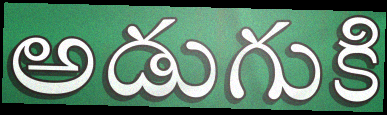
అడుగుకి